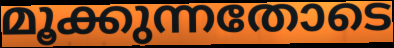
മൂക്കുന്നതോടെ